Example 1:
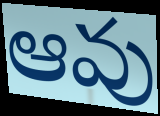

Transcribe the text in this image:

ఆవు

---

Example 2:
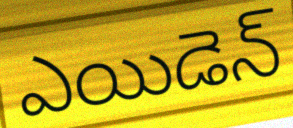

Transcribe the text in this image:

ఎయిడెన్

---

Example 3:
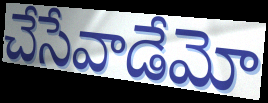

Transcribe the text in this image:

చేసేవాడేమో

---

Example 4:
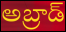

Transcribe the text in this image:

అబ్రాడ్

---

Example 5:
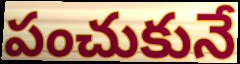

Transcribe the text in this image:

పంచుకునే